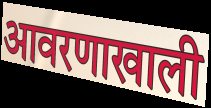
आवरणाखाली